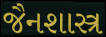
જૈનશાસ્ત્ર